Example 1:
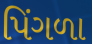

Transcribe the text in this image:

પિંગળા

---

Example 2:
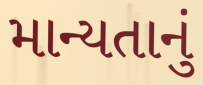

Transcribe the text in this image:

માન્યતાનું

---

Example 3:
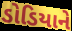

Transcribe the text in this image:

ડોડિયાને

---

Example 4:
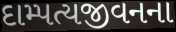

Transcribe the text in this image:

દામ્પત્યજીવનના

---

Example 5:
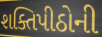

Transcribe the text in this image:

શક્તિપીઠોની